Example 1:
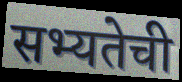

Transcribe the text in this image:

सभ्यतेची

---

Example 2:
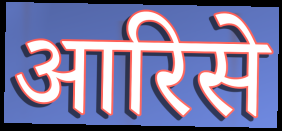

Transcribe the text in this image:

आरिसे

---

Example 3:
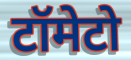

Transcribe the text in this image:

टॉमेटो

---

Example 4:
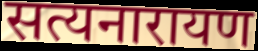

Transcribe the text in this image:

सत्यनारायण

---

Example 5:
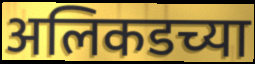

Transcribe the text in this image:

अलिकडच्या